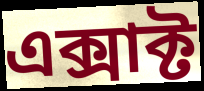
এক্সাক্ট